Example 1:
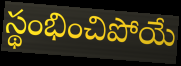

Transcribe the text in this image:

స్థంభించిపోయే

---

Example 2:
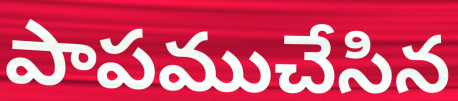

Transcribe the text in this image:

పాపముచేసిన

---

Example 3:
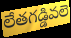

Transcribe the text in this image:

లేతగడ్డివలె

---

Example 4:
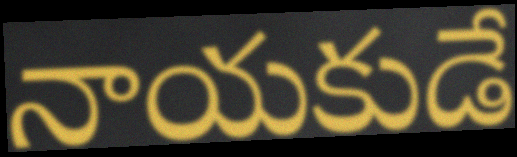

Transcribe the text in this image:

నాయకుడే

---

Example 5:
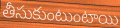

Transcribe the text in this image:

తీసుకుంటుంటాయి